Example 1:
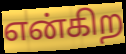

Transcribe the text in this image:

என்கிற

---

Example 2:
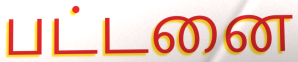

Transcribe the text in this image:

பட்டனை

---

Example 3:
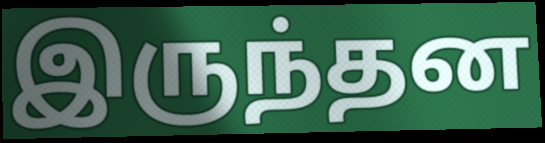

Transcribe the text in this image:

இருந்தன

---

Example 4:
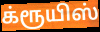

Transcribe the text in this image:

க்ரூயிஸ்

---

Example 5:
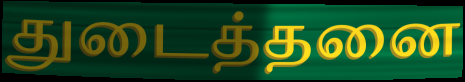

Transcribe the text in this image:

துடைத்தனை